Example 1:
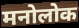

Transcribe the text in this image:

मनोलोक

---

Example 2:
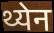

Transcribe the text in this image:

थ्येन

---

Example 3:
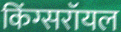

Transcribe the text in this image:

किंग्सरॉयल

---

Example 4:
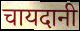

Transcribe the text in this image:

चायदानी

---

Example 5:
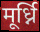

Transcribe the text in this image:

मूर्ध्नि